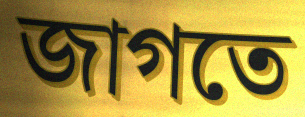
জাগতে